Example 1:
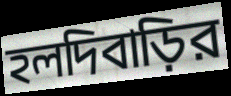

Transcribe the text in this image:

হলদিবাড়ির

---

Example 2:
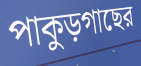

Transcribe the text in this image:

পাকুড়গাছের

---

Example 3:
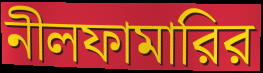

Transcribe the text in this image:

নীলফামারির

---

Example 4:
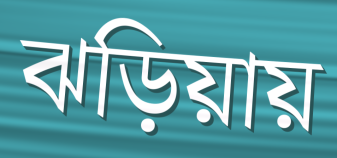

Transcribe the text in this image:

ঝড়িয়ায়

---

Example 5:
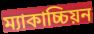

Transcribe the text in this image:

ম্যাকাচ্চিয়ন